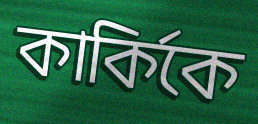
কার্কিকে